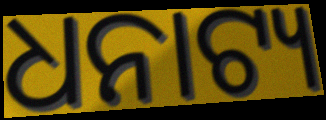
ଧନାଟ୍ୟ